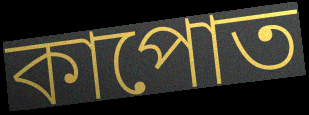
কাপোত